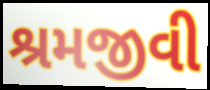
શ્રમજીવી